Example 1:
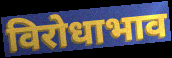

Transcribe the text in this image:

विरोधाभाव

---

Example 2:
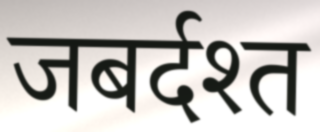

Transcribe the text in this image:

जबर्दश्त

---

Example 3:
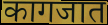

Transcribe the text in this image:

कागजात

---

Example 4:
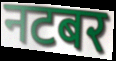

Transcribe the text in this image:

नटबर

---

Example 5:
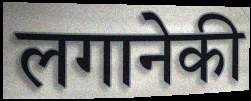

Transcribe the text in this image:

लगानेकी